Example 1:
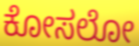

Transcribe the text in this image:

ಕೋಸಲೋ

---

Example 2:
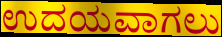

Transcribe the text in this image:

ಉದಯವಾಗಲು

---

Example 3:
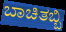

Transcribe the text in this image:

ಬಾಚಿತಬ್ಬಿ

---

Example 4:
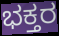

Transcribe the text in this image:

ಭಕ್ತರ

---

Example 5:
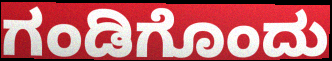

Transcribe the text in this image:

ಗಂಡಿಗೊಂದು